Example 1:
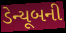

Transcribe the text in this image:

ડેન્યૂબની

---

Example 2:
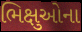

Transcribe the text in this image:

ભિક્ષુઓના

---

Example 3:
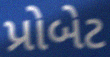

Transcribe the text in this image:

પ્રોબેટ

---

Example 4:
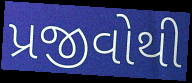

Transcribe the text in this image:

પ્રજીવોથી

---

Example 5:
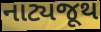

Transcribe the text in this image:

નાટ્યજૂથ